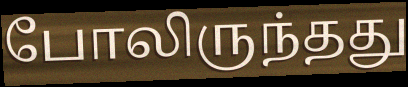
போலிருந்தது